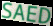
SAED